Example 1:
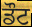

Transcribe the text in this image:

ਡੌਟ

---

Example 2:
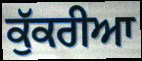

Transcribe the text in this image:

ਕੁੱਕਰੀਆ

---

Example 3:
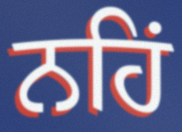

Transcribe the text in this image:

ਨਹਿਂ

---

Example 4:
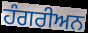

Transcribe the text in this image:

ਹੰਗਰੀਅਨ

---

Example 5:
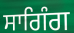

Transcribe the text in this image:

ਸਾਗਿੰਗ